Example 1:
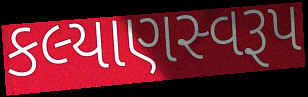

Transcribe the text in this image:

કલ્યાણસ્વરૂપ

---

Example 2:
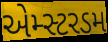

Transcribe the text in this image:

એમ્સ્ટરડમ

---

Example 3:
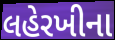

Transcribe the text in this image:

લહેરખીના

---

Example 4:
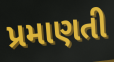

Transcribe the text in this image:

પ્રમાણતી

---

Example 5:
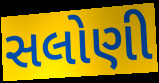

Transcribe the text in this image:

સલોણી